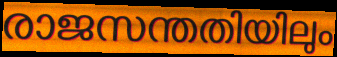
രാജസന്തതിയിലും